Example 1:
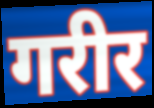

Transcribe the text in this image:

गरीर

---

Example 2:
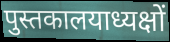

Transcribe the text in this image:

पुस्तकालयाध्यक्षों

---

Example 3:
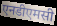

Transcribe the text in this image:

एनडीएमसी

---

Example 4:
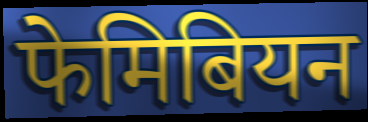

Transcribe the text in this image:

फेमिबियन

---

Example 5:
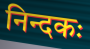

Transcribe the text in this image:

निन्दकः